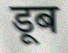
डूब